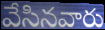
వేసినవారు